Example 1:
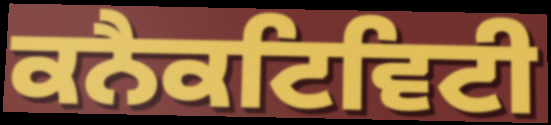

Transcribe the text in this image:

ਕਨੈਕਟਿਵਿਟੀ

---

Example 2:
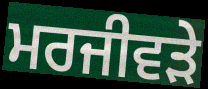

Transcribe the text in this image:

ਮਰਜੀਵੜੇ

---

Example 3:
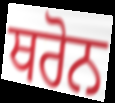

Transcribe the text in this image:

ਥਰੋਨ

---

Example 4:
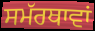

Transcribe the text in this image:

ਸਮੱਰਥਾਵਾਂ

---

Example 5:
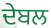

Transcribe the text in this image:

ਦੇਬਲ